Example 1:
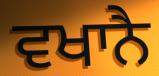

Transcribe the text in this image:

ਵਖਾਨੈ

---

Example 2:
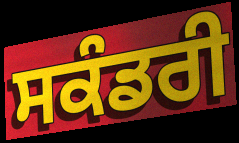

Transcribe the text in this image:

ਸਕੰਡਰੀ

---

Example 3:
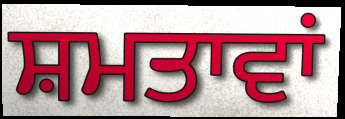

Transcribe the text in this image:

ਸ਼ਮਤਾਵਾਂ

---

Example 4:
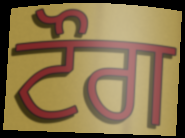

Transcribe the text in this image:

ਟੌਗ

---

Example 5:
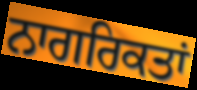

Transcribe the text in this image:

ਨਾਗਰਿਕਤਾਂ